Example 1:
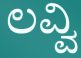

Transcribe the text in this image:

ಲವ್ವಿ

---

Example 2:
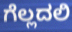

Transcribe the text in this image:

ಗೆಲ್ಲದಲಿ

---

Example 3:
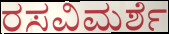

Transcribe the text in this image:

ರಸವಿಮರ್ಶೆ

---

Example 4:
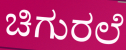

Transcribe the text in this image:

ಚಿಗುರಲೆ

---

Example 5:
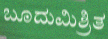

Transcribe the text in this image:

ಬೂದುಮಿಶ್ರಿತ